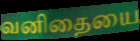
வனிதையை